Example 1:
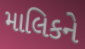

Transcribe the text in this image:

માલિકને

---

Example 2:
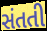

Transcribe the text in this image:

સંતતી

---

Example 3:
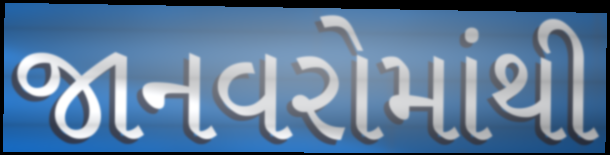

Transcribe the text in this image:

જાનવરોમાંથી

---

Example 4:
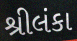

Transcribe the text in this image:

શ્રીલંકા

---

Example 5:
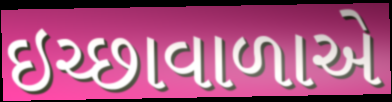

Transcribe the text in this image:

ઇચ્છાવાળાએ